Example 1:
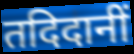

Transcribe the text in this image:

तदिदानीं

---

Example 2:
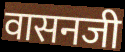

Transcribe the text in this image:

वासनजी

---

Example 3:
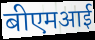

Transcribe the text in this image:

बीएमआई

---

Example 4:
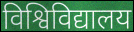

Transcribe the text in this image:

विश्विविद्यालय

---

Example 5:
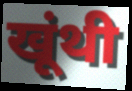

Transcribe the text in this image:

खूंथी